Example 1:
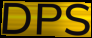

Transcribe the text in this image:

DPS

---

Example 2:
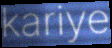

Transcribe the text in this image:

kariye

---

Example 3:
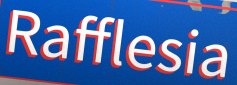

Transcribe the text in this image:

Rafflesia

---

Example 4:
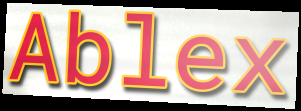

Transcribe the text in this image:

Ablex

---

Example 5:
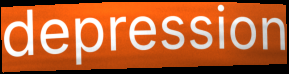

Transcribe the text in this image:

depression